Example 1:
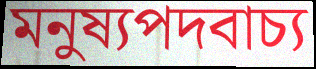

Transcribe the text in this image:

মনুষ্যপদবাচ্য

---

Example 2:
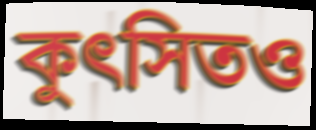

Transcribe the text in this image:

কুৎসিতও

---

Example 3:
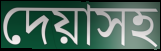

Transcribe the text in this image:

দেয়াসহ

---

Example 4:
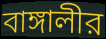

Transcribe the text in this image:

বাঙ্গালীর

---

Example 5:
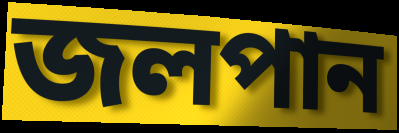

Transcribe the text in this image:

জলপান